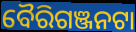
ବୈରିଗଞ୍ଜନଟା